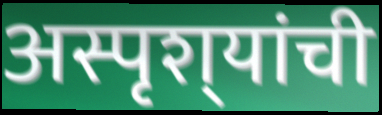
अस्पृश्यांची